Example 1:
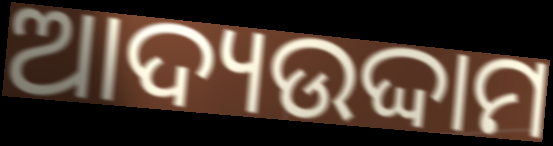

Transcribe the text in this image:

ଆଦ୍ୟଉଦ୍ଦାମ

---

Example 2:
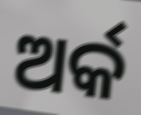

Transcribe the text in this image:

ଅର୍କ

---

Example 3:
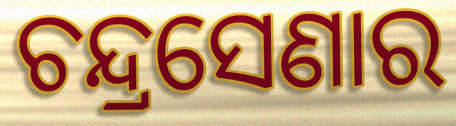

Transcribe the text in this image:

ଚନ୍ଦ୍ରସେଣାର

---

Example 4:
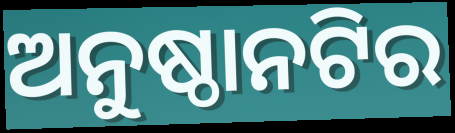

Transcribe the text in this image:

ଅନୁଷ୍ଠାନଟିର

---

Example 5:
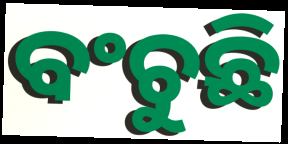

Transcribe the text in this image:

ବଂଚୁଛି